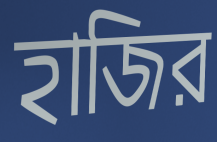
হাজির